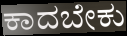
ಕಾದಬೇಕು